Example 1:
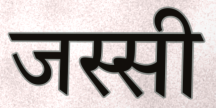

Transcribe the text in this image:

जस्सी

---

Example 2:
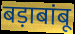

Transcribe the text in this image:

बड़ाबांबू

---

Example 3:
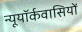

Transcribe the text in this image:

न्यूयॉर्कवासियों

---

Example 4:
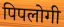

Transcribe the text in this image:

पिपलोगी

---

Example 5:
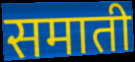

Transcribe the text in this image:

समाती